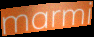
marmi